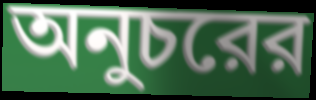
অনুচরের